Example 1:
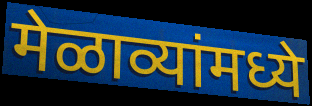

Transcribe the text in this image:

मेळाव्यांमध्ये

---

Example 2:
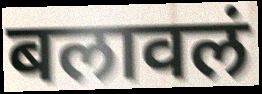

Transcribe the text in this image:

बलावलं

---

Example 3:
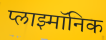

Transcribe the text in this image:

प्लाझ्मॉनिक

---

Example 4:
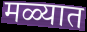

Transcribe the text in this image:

मळ्यात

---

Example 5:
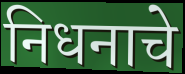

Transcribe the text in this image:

निधनाचे